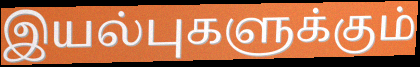
இயல்புகளுக்கும்